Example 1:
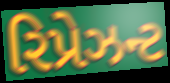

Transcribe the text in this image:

રિપ્રેઝન્ટ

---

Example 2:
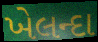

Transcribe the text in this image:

ખેલન્દા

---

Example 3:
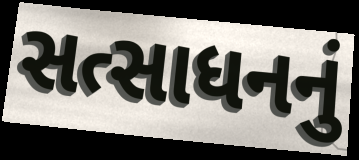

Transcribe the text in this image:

સત્સાધનનું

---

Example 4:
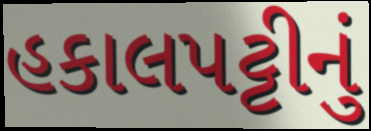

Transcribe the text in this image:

હકાલપટ્ટીનું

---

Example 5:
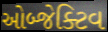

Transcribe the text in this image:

ઓબ્જેક્ટિવ